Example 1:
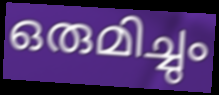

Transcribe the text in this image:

ഒരുമിച്ചും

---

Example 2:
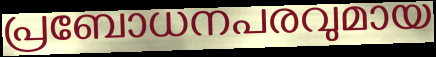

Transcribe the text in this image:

പ്രബോധനപരവുമായ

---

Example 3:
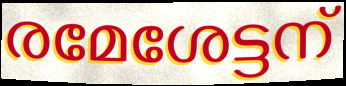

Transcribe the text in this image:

രമേശേട്ടന്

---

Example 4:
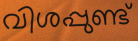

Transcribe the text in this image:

വിശപ്പുണ്ട്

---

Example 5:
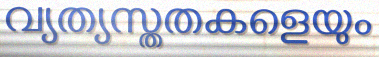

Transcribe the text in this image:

വ്യത്യസ്തതകളെയും